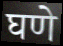
घणे